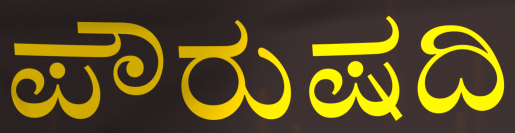
ಪೌರುಷದಿ